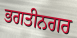
ਭਗਤੀਨਗਰ